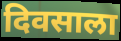
दिवसाला